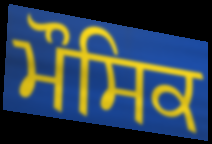
ਮੌਸਿਕ